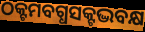
ଠକ୍ଟମବଗ୍ଧସକ୍ଟଦ୍ଭବକ୍ଷ